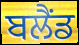
ਬਲੈਂਡ